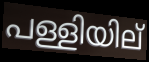
പള്ളിയില്